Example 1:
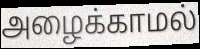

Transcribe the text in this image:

அழைக்காமல்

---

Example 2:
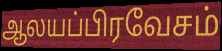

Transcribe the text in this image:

ஆலயப்பிரவேசம்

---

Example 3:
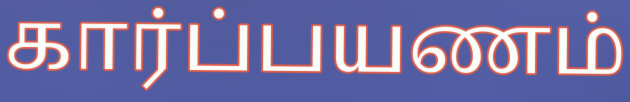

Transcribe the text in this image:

கார்ப்பயணம்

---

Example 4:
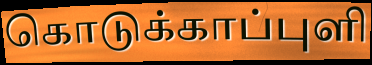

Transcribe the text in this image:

கொடுக்காப்புளி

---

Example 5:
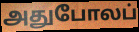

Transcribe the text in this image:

அதுபோலப்